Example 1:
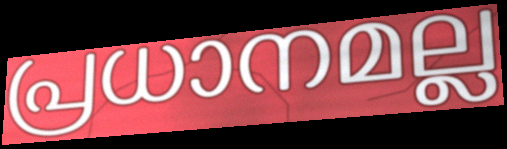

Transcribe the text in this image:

പ്രധാനമല്ല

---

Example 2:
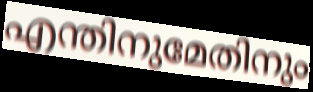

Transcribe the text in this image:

എന്തിനുമേതിനും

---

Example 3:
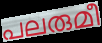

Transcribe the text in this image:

പലരുമീ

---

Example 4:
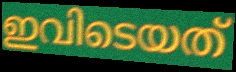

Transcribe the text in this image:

ഇവിടെയത്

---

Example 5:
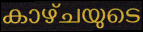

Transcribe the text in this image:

കാഴ്‌ചയുടെ